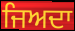
ਜਿਅਦਾ